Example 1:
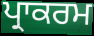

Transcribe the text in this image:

ਪ੍ਰਾਕਰਮ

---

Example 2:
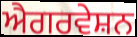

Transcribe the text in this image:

ਐਗਰਵੇਸ਼ਨ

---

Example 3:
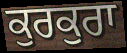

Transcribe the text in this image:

ਕੁਰਕੁਰਾ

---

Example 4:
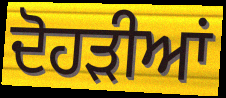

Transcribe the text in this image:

ਦੋਹੜੀਆਂ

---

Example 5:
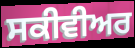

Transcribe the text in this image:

ਸਕੀਵੀਅਰ